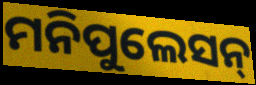
ମନିପୁଲେସନ୍